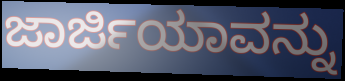
ಜಾರ್ಜಿಯಾವನ್ನು